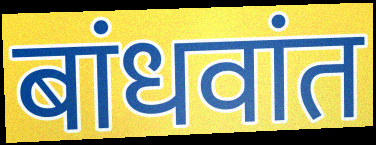
बांधवांत